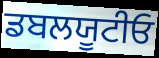
ਡਬਲਯੂਟੀਓ